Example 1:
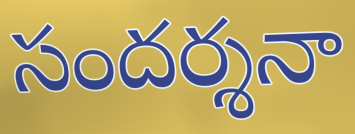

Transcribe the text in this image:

సందర్శనా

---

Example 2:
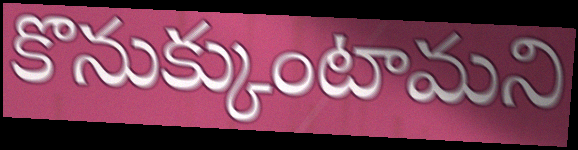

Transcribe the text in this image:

కొనుక్కుంటామని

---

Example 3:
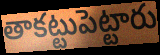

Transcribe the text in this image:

తాకట్టుపెట్టారు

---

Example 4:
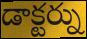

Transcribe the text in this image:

డాక్టర్ను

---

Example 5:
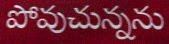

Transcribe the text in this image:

పోవుచున్నను